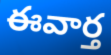
ఈవార్త